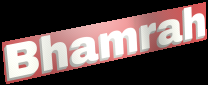
Bhamrah